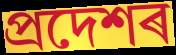
প্ৰদেশৰ